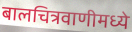
बालचित्रवाणीमध्ये